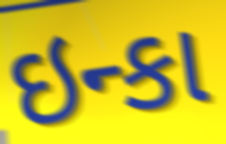
ઇન્કા